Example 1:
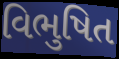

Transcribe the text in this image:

વિભુષિત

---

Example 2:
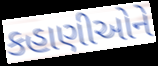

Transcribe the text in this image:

કહાણીઓને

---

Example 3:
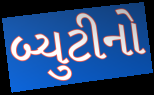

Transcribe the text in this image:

બ્યુટીનો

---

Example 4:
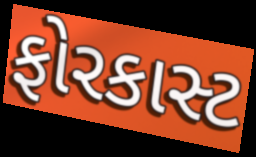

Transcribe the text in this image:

ફોરકાસ્ટ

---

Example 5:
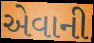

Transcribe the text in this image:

એવાની